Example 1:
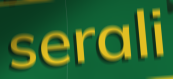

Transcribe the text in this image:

serali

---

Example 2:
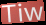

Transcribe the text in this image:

Tiw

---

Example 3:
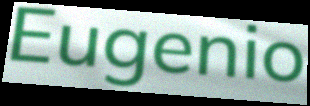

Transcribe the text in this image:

Eugenio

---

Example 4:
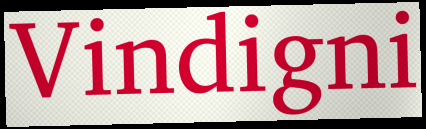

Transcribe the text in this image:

Vindigni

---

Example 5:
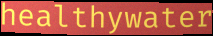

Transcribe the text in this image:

healthywater